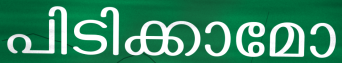
പിടിക്കാമോ